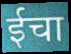
ईचा